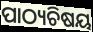
ପାଠ୍ୟଚିଷୟ